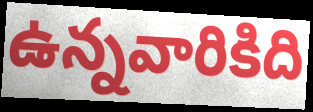
ఉన్నవారికిది